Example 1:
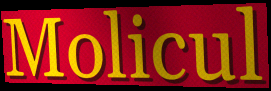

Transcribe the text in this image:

Molicul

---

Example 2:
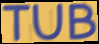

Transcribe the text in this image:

TUB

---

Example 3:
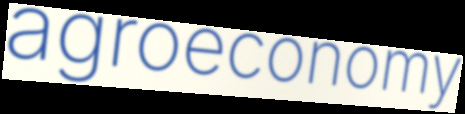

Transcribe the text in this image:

agroeconomy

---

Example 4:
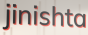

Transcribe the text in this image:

jinishta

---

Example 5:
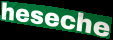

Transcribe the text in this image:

heseche